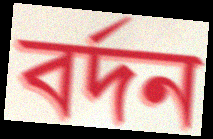
বর্দন